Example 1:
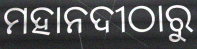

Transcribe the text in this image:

ମହାନଦୀଠାରୁ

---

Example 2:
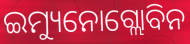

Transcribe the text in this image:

ଇମ୍ୟୁନୋଗ୍ଲୋବିନ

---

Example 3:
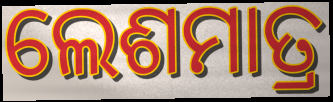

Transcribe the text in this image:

ଲେଶମାତ୍ର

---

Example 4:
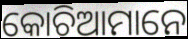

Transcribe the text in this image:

କୋଚିଆମାନେ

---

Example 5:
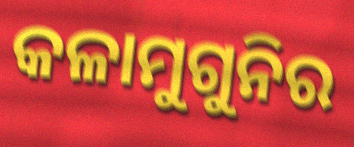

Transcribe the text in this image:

କଳାମୁଗୁନିର